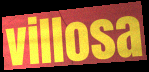
villosa